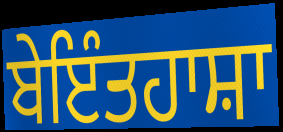
ਬੇਇੰਤਹਾਸ਼ਾ